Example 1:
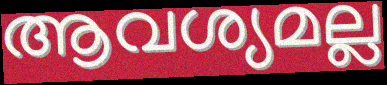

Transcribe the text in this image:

ആവശ്യമല്ല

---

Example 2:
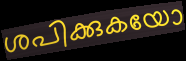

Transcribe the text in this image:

ശപിക്കുകയോ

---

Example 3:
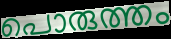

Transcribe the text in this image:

പൊരുത്തം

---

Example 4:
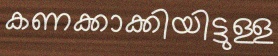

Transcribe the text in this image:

കണക്കാക്കിയിട്ടുള്ള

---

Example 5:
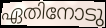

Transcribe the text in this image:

ഏതിനോടു